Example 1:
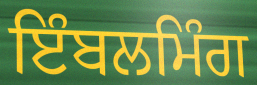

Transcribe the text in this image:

ਇੰਬਲਮਿੰਗ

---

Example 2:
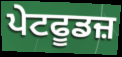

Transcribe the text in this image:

ਪੇਟਫੂਡਜ਼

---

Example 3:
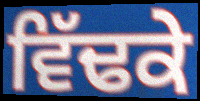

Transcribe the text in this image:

ਵਿੱਢਕੇ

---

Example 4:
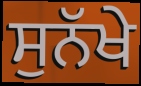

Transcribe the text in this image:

ਸੁਨੱਖੇ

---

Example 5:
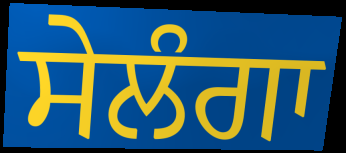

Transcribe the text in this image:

ਸੇਲੰਗਾ